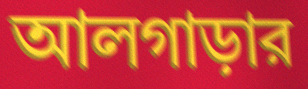
আলগাড়ার